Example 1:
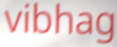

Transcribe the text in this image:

vibhag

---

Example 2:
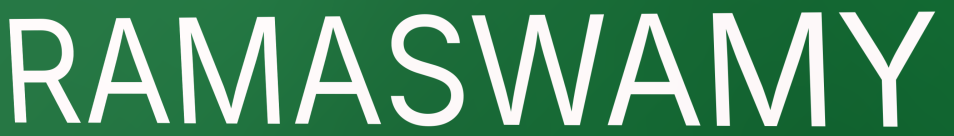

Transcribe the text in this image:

RAMASWAMY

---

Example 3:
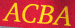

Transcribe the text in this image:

ACBA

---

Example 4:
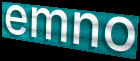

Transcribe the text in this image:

emno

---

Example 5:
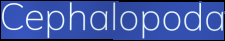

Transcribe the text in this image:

Cephalopoda